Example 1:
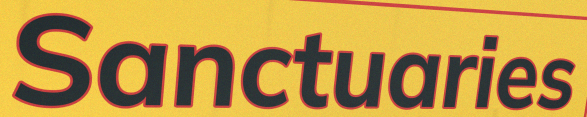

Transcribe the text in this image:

Sanctuaries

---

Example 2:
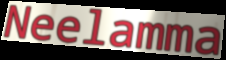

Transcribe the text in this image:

Neelamma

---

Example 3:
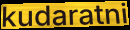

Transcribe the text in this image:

kudaratni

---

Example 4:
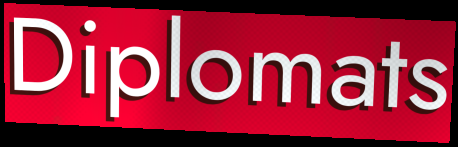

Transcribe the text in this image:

Diplomats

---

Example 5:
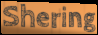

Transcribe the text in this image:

Shering